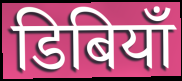
डिबियाँ